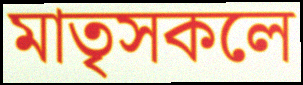
মাতৃসকলে